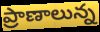
ప్రాణాలున్న